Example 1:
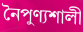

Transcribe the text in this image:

নৈপুণ্যশালী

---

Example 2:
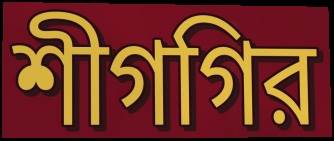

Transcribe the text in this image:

শীগগির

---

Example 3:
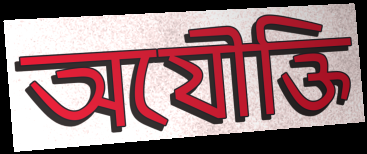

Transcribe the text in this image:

অযৌক্তি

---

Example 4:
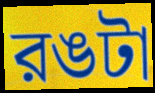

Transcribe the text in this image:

রঙটা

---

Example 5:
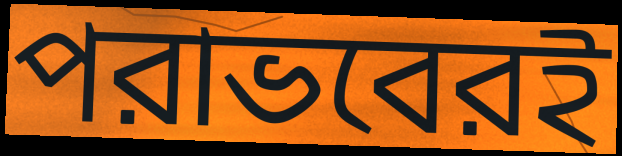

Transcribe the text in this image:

পরাভবেরই